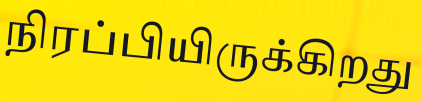
நிரப்பியிருக்கிறது